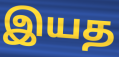
இயத